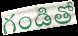
గండితో